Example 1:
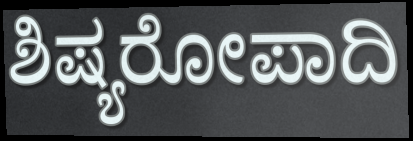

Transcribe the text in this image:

ಶಿಷ್ಯರೋಪಾದಿ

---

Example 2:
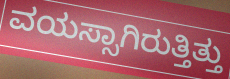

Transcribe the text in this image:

ವಯಸ್ಸಾಗಿರುತ್ತಿತ್ತು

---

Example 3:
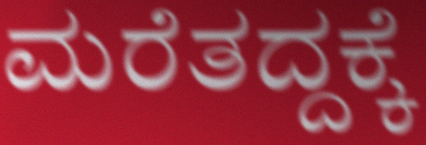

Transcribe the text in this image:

ಮರೆತದ್ದಕ್ಕೆ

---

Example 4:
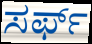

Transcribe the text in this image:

ಸರ್ಫ್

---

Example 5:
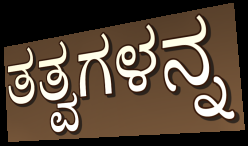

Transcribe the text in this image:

ತತ್ವಗಳನ್ನ